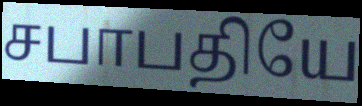
சபாபதியே